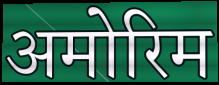
अमोरिम